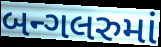
બન્ગલરુમાં